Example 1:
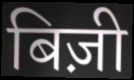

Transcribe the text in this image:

बिज़ी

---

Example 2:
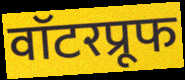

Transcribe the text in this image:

वॉटरप्रूफ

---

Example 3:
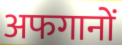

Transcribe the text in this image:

अफगानों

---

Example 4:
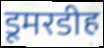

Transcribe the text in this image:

डूमरडीह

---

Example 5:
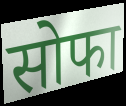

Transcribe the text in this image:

सोफा